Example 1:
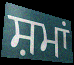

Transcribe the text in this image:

ਸ਼ਮਾਂ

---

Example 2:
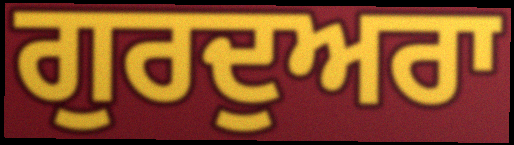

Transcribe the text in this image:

ਗੁਰਦੁਅਰਾ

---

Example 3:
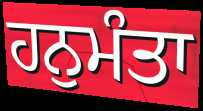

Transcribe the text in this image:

ਹਨੁਮੰਤਾ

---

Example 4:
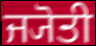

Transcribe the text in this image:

ਜ੍ਯੋਤੀ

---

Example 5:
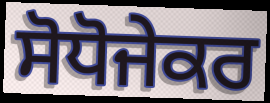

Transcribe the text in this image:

ਸੋਧੋਜੇਕਰ